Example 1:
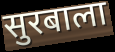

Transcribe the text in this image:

सुरबाला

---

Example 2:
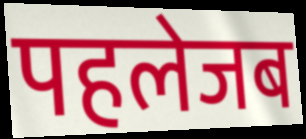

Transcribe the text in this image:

पहलेजब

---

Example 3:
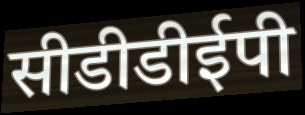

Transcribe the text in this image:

सीडीडीईपी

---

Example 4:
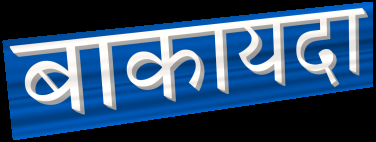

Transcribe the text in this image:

बाकायदा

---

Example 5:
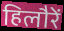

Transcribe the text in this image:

हिलौरें